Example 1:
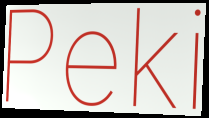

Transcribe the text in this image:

Peki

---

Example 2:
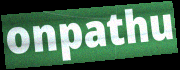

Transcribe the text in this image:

onpathu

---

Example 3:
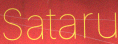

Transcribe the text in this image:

Sataru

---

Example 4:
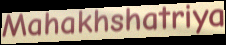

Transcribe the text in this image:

Mahakhshatriya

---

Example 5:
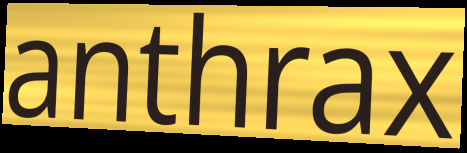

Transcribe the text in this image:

anthrax